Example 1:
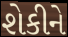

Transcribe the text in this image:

શેકીને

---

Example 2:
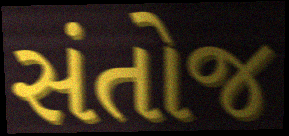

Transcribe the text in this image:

સંતોજ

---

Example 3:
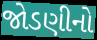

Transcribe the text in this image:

જોડણીનો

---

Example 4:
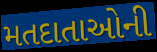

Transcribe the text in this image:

મતદાતાઓની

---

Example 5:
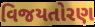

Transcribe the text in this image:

વિજયતોરણ